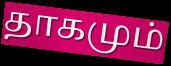
தாகமும்